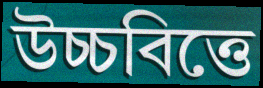
উচ্চবিত্তে